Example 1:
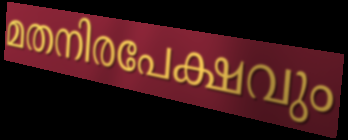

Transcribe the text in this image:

മതനിരപേക്ഷവും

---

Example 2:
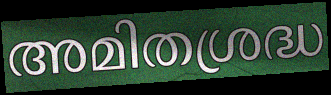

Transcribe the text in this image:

അമിതശ്രദ്ധ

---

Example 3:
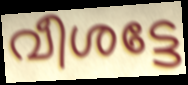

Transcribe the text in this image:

വീശട്ടേ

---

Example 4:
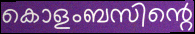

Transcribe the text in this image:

കൊളംബസിന്റെ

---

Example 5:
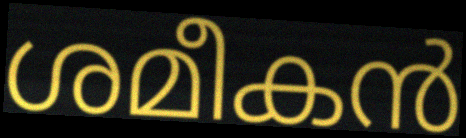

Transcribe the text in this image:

ശമീകൻ